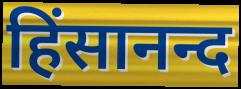
हिंसानन्द